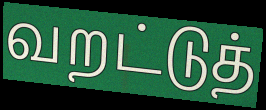
வறட்டுத்